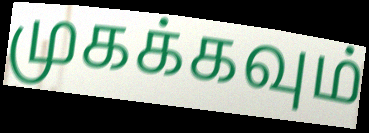
முகக்கவும்